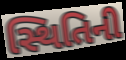
સ્થિતિની